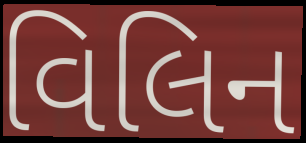
વિલિન